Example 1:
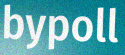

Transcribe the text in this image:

bypoll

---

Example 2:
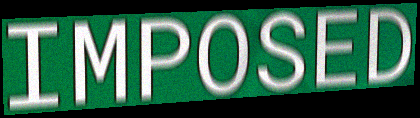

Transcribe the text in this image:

IMPOSED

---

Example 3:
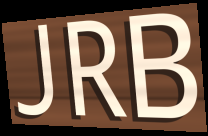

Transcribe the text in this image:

JRB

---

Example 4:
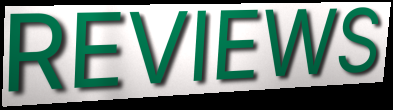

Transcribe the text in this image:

REVIEWS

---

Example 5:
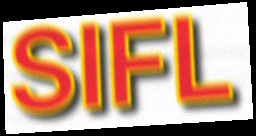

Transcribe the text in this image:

SIFL